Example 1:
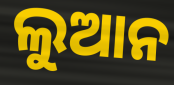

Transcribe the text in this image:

ଲୁଆନ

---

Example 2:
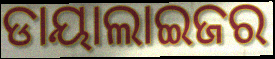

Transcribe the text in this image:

ଡାୟାଲାଇଜର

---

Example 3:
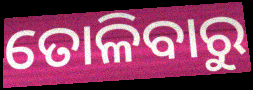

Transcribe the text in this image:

ତୋଳିବାରୁ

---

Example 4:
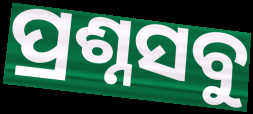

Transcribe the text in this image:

ପ୍ରଶ୍ନସବୁ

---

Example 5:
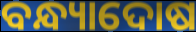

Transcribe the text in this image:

ବନ୍ଧ୍ୟାଦୋଷ